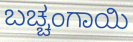
ಬಚ್ಚಂಗಾಯಿ